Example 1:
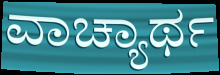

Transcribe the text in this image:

ವಾಚ್ಯಾರ್ಥ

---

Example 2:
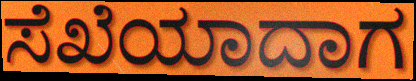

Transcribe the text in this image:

ಸೆಖೆಯಾದಾಗ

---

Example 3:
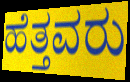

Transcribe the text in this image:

ಹೆತ್ತವರು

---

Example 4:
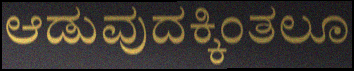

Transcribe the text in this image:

ಆಡುವುದಕ್ಕಿಂತಲೂ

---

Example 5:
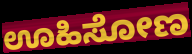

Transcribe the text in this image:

ಊಹಿಸೋಣ